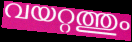
വയറ്റത്തും